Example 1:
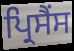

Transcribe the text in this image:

ਪ੍ਰਿਸੈਂਸ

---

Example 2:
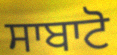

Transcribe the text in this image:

ਸਾਬਾਟੋ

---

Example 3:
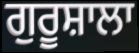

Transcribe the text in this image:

ਗੁਰੂਸ਼ਾਲਾ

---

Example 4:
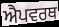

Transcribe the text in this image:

ਐਪਵਰਥ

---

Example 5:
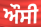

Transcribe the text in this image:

ਔਸੀ